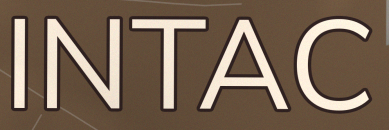
INTAC